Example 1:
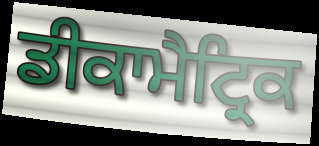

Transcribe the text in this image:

ਡੀਕਾਮੈਟ੍ਰਿਕ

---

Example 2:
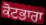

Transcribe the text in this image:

ਕੋਟਭਾਰਾ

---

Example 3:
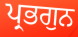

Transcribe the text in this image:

ਪ੍ਰਭਗੁਨ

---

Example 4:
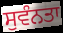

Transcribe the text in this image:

ਸੁਵੰਨਤਾ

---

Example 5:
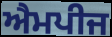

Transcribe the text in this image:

ਐਮਪੀਜ